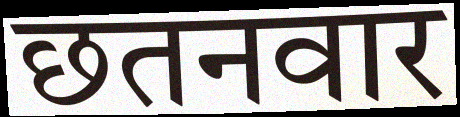
छतनवार